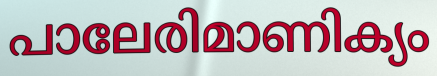
പാലേരിമാണിക്യം